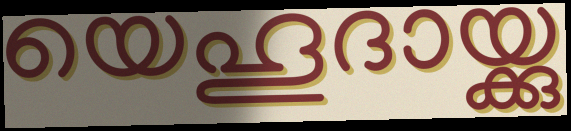
യെഹൂദായ്ക്കു